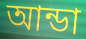
আন্ডা